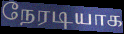
நேரடியாக